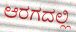
ಆರಗದಲ್ಲಿ